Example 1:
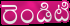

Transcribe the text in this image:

రెండిటి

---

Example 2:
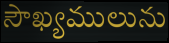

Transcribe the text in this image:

సౌఖ్యములును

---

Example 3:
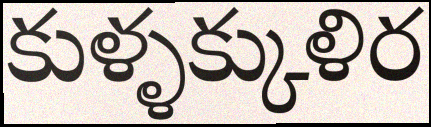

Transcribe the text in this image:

కుళ్ళక్కుళిర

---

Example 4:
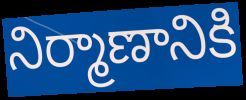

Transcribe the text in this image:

నిర్మాణానికి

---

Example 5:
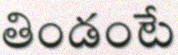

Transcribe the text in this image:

తిండంటే